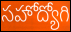
సహోద్యోగి